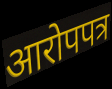
आरोपपत्र